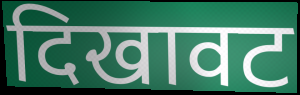
दिखावट